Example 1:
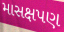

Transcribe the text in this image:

માસક્ષપણ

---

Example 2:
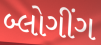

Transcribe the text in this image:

બ્લોગીંગ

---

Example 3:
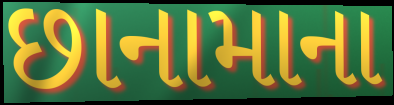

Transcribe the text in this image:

છાનામાના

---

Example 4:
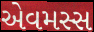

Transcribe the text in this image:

એવમસ્સ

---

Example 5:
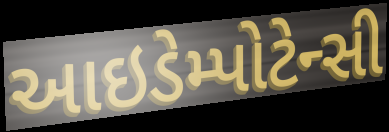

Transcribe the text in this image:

આઇડેમ્પોટેન્સી